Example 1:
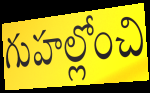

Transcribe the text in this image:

గుహల్లోంచి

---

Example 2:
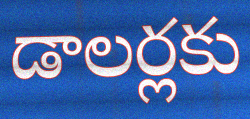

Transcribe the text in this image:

డాలర్లకు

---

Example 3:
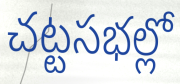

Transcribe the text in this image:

చట్టసభల్లో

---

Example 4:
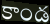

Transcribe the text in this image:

కాండ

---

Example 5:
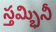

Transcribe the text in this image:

స్తమ్భినీ